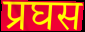
प्रघस